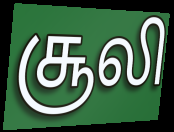
சூலி